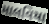
માલવિયા